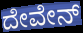
ದೇವೇನ್